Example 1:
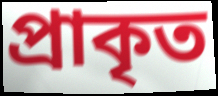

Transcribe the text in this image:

প্ৰাকৃত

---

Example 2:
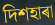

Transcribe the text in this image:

দিশহাৰা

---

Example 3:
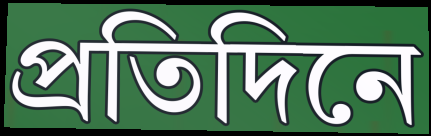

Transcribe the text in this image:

প্ৰতিদিনে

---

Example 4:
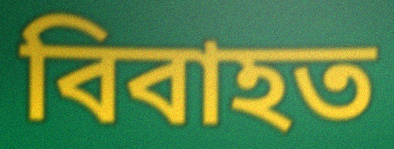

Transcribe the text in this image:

বিবাহত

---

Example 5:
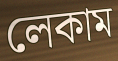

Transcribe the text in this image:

লেকাম